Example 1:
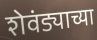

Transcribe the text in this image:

शेवंड्याच्या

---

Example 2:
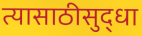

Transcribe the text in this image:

त्यासाठीसुद्धा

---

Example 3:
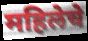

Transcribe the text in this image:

महिलेचे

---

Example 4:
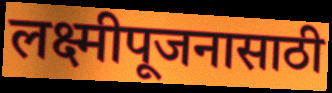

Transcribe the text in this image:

लक्ष्मीपूजनासाठी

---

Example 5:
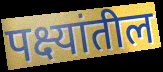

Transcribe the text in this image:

पक्ष्यांतील